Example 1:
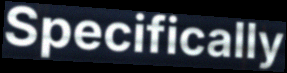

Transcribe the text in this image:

Specifically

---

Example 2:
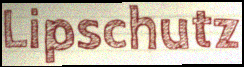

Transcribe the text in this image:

Lipschutz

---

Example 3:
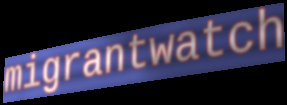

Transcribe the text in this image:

migrantwatch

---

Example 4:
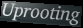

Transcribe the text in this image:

Uprooting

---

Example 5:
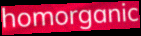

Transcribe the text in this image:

homorganic